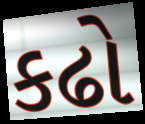
કઢો